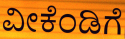
ವೀಕೆಂಡಿಗೆ